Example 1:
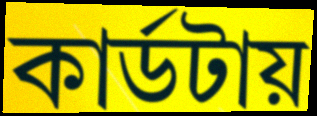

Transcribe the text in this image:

কার্ডটায়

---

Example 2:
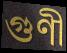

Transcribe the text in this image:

গুণী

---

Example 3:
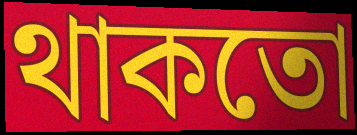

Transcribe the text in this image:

থাকতো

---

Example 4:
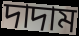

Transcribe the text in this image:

দাদাম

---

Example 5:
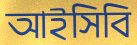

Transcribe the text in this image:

আইসিবি